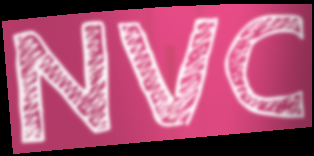
NVC